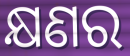
କ୍ଷଣର